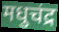
मधुचंद्र